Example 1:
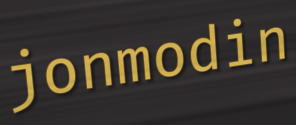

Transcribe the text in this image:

jonmodin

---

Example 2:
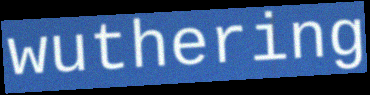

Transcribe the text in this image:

wuthering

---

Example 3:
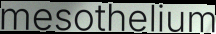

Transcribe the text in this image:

mesothelium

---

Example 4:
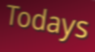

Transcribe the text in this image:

Todays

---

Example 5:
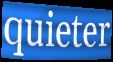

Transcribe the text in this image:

quieter